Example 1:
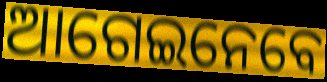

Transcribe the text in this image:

ଆଗେଇନେବେ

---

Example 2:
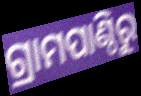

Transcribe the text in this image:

ଗ୍ରାମପାଣ୍ଠିରୁ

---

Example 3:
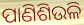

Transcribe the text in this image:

ପାଣିଶିଉଳି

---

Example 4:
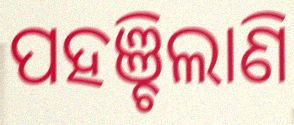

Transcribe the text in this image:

ପହଞ୍ଚିଲାଣି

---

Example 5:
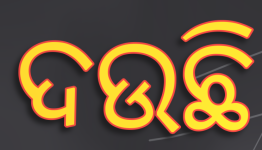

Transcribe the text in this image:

ଦଉଛି